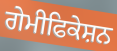
ਗੇਮੀਫਿਕੇਸ਼ਨ